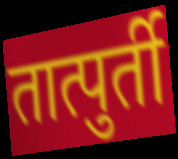
तात्पुर्ती